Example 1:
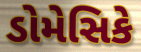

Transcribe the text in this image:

ડોમેસિકે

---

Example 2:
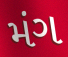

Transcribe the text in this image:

મંગ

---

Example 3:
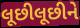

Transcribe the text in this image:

લૂછીલૂછીને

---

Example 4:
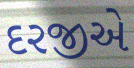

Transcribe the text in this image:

દરજીએ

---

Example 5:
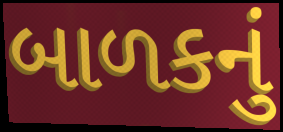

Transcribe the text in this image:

બાળકનું